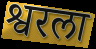
श्वरला